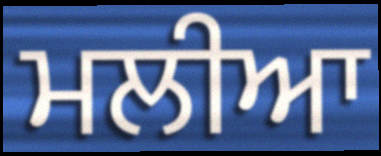
ਮਲੀਆ